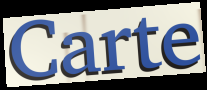
Carte